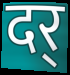
दर्